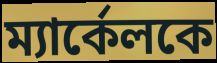
ম্যার্কেলকে